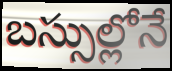
బస్సుల్లోనే